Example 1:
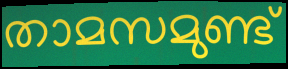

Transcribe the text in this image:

താമസമുണ്ട്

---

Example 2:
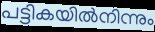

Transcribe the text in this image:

പട്ടികയിൽനിന്നും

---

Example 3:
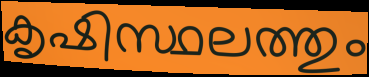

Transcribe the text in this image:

കൃഷിസ്ഥലത്തും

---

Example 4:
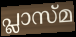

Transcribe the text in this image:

പ്ലാസ്മ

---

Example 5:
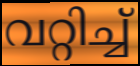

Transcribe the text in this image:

വറ്റിച്ച്